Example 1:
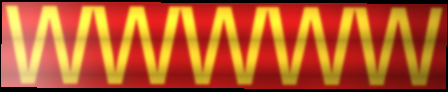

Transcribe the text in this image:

wwwww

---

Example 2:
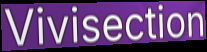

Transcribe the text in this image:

Vivisection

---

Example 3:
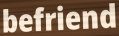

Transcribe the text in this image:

befriend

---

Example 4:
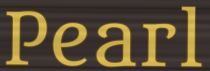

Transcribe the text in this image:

Pearl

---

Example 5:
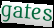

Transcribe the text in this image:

gates